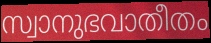
സ്വാനുഭവാതീതം